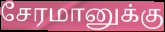
சேரமானுக்கு